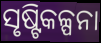
ସୃଷ୍ଟିକଳ୍ପନା